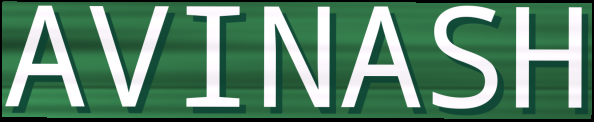
AVINASH